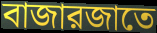
বাজারজাতে